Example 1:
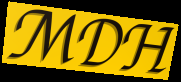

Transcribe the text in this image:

MDH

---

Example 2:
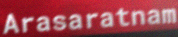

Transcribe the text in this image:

Arasaratnam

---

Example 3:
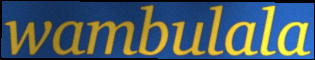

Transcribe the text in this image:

wambulala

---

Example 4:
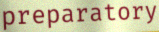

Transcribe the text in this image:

preparatory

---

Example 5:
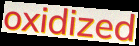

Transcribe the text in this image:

oxidized